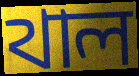
থাল